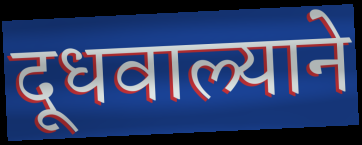
दूधवाल्याने